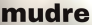
mudre